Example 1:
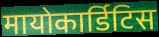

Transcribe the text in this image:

मायोकार्डिटिस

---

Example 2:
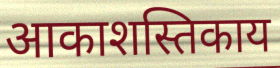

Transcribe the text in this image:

आकाशस्तिकाय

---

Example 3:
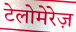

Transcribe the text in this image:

टेलोमेरेज़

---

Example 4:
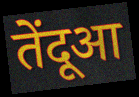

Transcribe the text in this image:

तेंदूआ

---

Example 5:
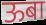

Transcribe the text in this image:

ऊबा